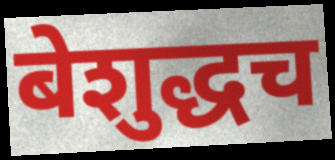
बेशुद्धच